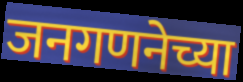
जनगणनेच्या